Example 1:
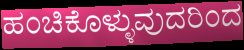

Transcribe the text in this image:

ಹಂಚಿಕೊಳ್ಳುವುದರಿಂದ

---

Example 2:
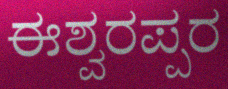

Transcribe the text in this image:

ಈಶ್ವರಪ್ಪರ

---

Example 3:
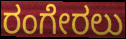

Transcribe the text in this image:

ರಂಗೇರಲು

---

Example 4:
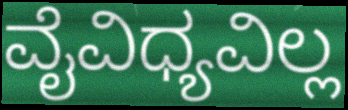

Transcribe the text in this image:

ವೈವಿಧ್ಯವಿಲ್ಲ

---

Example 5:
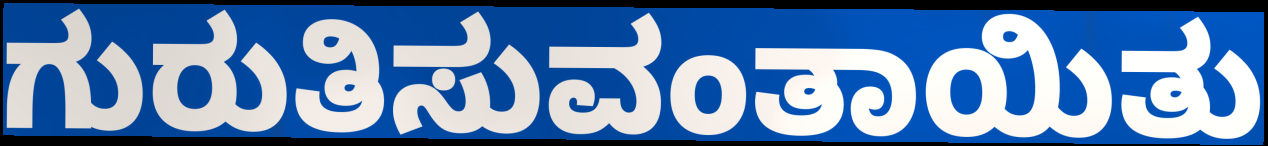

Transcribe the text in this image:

ಗುರುತಿಸುವಂತಾಯಿತು